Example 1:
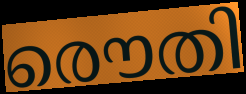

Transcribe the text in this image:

രൌതി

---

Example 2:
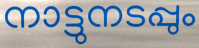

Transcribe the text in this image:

നാട്ടുനടപ്പും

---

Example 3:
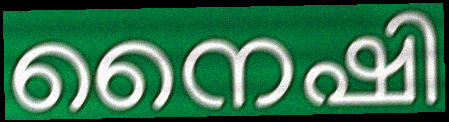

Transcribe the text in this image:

നൈഷി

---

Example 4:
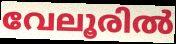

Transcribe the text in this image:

വേലൂരിൽ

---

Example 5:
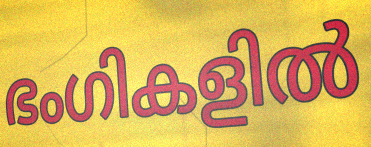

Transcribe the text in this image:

ഭംഗികളിൽ